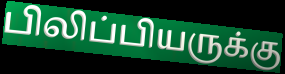
பிலிப்பியருக்கு